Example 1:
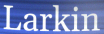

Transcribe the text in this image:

Larkin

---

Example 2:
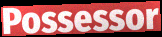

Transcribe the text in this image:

Possessor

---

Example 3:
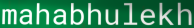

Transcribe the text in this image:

mahabhulekh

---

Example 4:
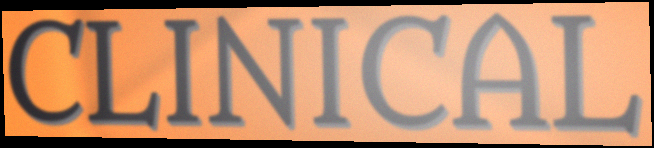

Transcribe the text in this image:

CLINICAL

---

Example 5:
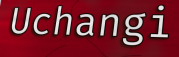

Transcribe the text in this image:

Uchangi